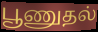
பூணுதல்